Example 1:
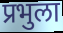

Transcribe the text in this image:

प्रभुला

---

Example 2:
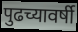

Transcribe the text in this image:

पुढच्यावर्षी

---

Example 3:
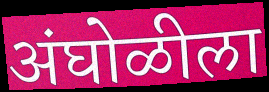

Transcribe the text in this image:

अंघोळीला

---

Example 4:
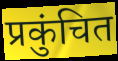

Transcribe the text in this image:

प्रकुंचित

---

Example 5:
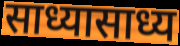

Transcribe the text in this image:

साध्यासाध्य